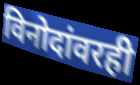
विनोदांवरही